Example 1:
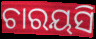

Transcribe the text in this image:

ଚାରୟସି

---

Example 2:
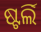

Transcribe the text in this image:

ଷ୍ଟର୍ଲି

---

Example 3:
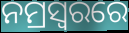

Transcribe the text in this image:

ନମ୍ରସ୍ୱରରେ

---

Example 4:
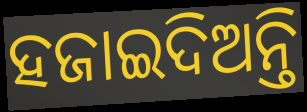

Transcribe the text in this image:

ହଜାଇଦିଅନ୍ତି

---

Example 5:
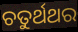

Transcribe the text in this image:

ଚତୁର୍ଥଥର